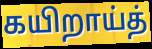
கயிறாய்த்